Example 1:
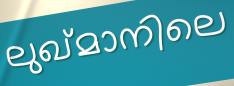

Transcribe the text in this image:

ലുഖ്മാനിലെ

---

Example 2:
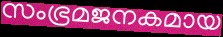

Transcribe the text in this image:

സംഭ്രമജനകമായ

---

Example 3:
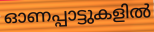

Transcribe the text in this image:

ഓണപ്പാട്ടുകളിൽ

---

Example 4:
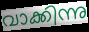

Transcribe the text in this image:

വാക്കിന്നു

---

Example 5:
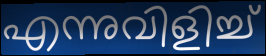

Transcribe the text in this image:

എന്നുവിളിച്ച്